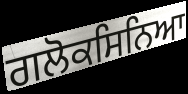
ਗਲੋਕਸਿਨਿਆ